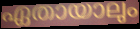
ഏതായാലും